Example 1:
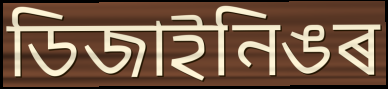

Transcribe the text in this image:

ডিজাইনিঙৰ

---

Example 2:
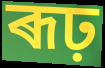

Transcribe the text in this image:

ৰূঢ়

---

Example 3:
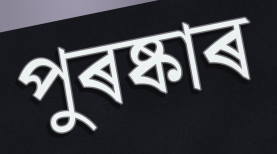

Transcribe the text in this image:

পুৰষ্কাৰ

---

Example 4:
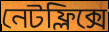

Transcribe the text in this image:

নেটফ্লিক্সে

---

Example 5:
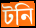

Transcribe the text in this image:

টনি